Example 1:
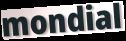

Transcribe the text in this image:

mondial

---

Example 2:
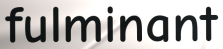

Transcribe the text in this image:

fulminant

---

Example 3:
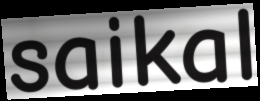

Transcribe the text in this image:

saikal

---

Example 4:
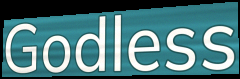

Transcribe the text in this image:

Godless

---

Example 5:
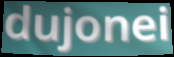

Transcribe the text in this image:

dujonei